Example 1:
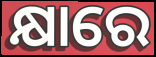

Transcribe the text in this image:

କ୍ଷାରେ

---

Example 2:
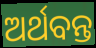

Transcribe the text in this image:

ଅର୍ଥବନ୍ତ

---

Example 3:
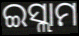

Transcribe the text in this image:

ଇସ୍ଲାମ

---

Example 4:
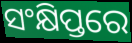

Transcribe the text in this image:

ସଂକ୍ଷିପ୍ତରେ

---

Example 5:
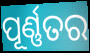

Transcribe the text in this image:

ପୂର୍ଣ୍ଣତର